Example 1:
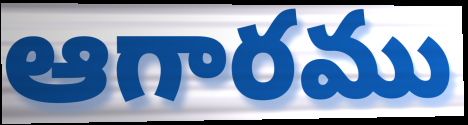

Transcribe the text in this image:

ఆగారము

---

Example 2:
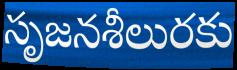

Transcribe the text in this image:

సృజనశీలురకు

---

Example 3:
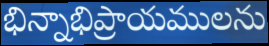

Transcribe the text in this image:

భిన్నాభిప్రాయములను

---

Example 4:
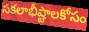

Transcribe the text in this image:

సకలాభీష్టాలకోసం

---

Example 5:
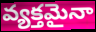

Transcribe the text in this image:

వ్యక్తమైనా